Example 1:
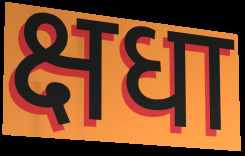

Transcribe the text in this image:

क्षधा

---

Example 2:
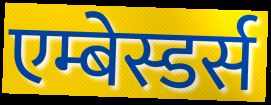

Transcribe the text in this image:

एम्बेस्डर्स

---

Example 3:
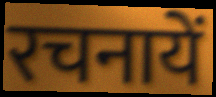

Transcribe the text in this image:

रचनायें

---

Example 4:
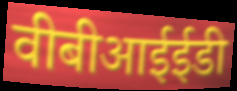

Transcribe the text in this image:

वीबीआईईडी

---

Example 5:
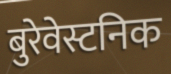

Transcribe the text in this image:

बुरेवेस्टनिक